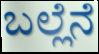
ಬಲ್ಲೆನೆ